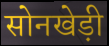
सोनखेड़ी